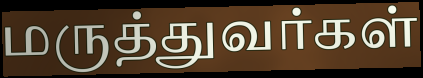
மருத்துவர்கள்